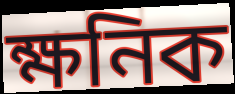
ক্ষনিক